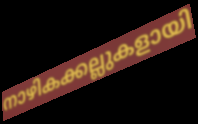
നാഴികക്കല്ലുകളായി